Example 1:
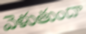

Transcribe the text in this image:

వెళుతుందా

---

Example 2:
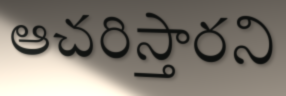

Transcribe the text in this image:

ఆచరిస్తారని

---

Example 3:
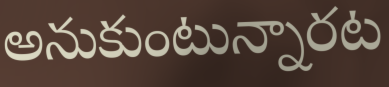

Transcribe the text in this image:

అనుకుంటున్నారట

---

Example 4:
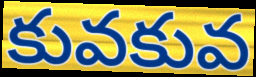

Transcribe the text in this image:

కువకువ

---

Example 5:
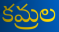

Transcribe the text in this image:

కమ్రల